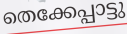
തെക്കേപ്പാട്ടു